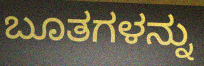
ಬೂತಗಳನ್ನು